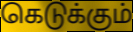
கெடுக்கும்